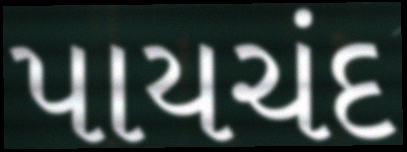
પાયચંદ